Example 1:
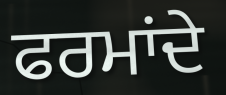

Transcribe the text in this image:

ਫਰਮਾਂਦੇ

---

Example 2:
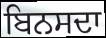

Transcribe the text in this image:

ਬਿਨਸਦਾ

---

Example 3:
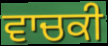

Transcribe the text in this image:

ਵਾਚਕੀ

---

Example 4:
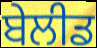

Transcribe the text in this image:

ਬੇਲੀਡ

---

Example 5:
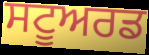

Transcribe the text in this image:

ਸਟੂਅਰਡ